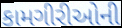
કામગીરીઓની